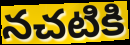
నచటికి